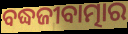
ବଦ୍ଧଜୀବାତ୍ମାର